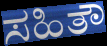
ಸಹಿತೌ